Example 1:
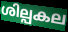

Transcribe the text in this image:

ശില്പകല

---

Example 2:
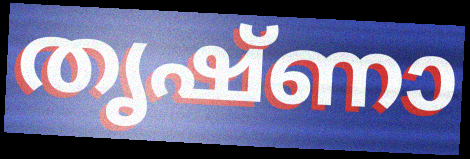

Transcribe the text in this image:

തൃഷ്ണാ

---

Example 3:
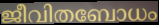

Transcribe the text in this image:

ജീവിതബോധം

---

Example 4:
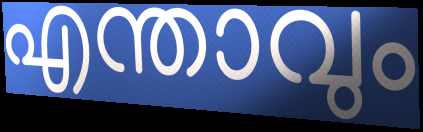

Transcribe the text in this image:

എന്താവും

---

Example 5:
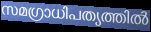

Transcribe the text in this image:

സമഗ്രാധിപത്യത്തിൽ